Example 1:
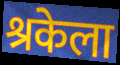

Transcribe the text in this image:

श्रकेला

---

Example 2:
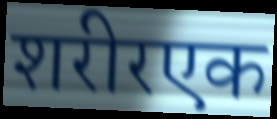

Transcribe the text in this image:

शरीरएक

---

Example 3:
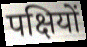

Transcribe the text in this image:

पक्षियों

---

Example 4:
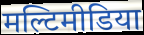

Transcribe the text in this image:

मल्टिमीडिया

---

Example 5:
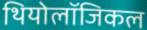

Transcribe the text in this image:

थियोलॉजिकल